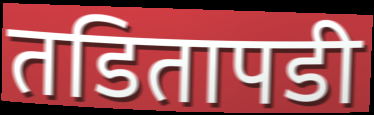
तडितापडी